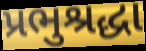
પ્રભુશ્રદ્ધા